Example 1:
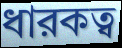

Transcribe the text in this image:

ধারকত্ব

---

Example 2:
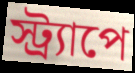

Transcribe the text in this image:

স্ট্র্যাপে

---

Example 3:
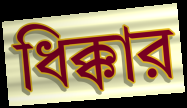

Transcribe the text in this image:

ধিক্কার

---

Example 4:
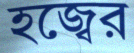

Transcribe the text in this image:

হজ্বের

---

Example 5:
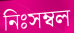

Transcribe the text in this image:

নিঃসম্বল